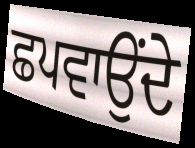
ਛਪਵਾਉਂਦੇ